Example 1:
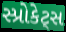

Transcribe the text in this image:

સ્પ્રોકેટ્સ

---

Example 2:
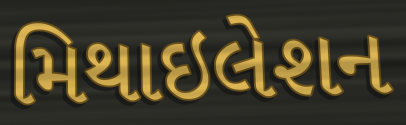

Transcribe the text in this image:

મિથાઇલેશન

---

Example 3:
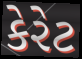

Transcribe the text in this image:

કેરેટ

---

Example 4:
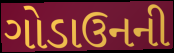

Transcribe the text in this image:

ગોડાઉનની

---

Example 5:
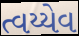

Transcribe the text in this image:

ત્વય્યેવ